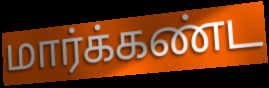
மார்க்கண்ட